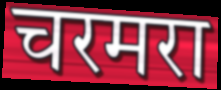
चरमरा